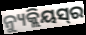
ନ୍ୟୁକ୍ଲିୟସ୍‌ର